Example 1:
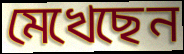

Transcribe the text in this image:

মেখেছেন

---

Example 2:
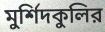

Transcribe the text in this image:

মুর্শিদকুলির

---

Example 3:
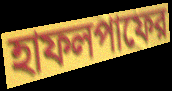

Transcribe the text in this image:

হাফলপাফের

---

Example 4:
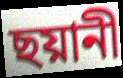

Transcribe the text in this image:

ছয়ানী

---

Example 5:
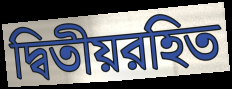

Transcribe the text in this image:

দ্বিতীয়রহিত